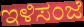
ಇಳಿಸಂಜೆ